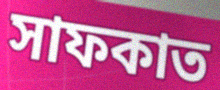
সাফকাত